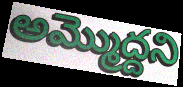
అమ్మొద్దని